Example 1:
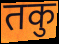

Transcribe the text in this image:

तकु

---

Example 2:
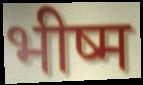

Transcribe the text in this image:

भीष्म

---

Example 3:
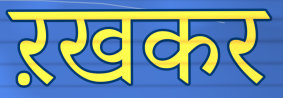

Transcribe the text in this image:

ऱखकर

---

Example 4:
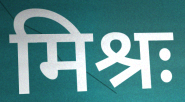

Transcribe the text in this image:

मिश्रः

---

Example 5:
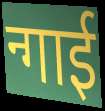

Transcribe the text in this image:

न्गाई